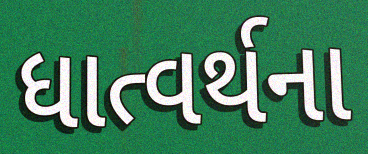
ધાત્વર્થના